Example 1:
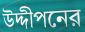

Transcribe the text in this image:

উদ্দীপনের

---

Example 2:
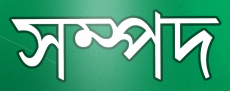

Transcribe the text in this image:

সম্পদ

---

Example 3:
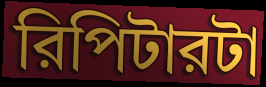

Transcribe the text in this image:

রিপিটারটা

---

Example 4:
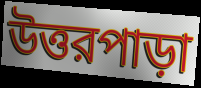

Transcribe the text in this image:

উত্তরপাড়া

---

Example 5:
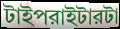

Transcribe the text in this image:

টাইপরাইটারটা